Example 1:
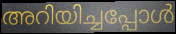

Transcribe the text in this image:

അറിയിച്ചപ്പോൾ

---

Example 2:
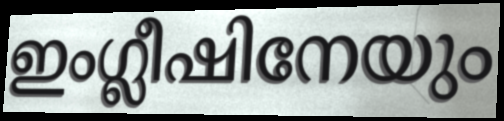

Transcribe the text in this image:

ഇംഗ്ലീഷിനേയും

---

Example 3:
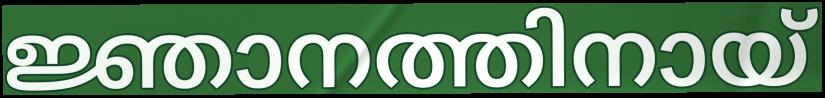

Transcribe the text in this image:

ജ്ഞാനത്തിനായ്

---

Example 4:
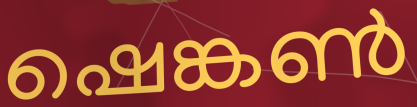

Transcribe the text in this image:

ഷെങ്കൺ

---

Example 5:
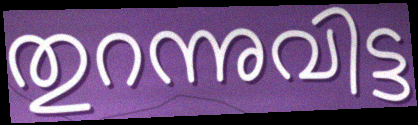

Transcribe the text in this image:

തുറന്നുവിട്ട